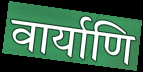
वार्याणि